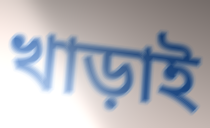
খাড়াই